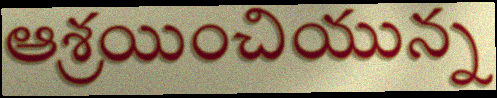
ఆశ్రయించియున్న